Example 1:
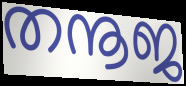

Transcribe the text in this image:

തനൂജ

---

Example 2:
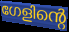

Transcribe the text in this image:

ഗേളിന്റെ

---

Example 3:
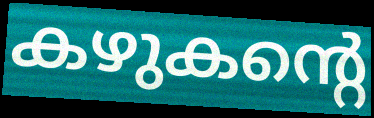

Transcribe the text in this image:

കഴുകന്റെ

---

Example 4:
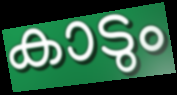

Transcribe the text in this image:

കാടും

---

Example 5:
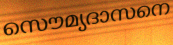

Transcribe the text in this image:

സൌമ്യദാസനെ